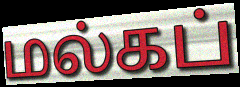
மல்கப்